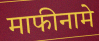
माफीनामे